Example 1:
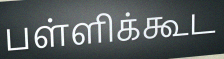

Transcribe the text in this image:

பள்ளிக்கூட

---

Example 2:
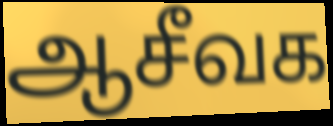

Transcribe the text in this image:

ஆசீவக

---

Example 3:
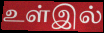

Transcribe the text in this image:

உள்இல்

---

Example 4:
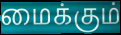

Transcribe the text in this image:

மைக்கும்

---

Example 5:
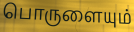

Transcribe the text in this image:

பொருளையும்